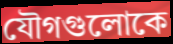
যৌগগুলোকে